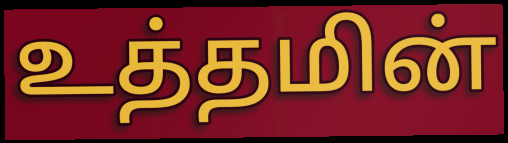
உத்தமின்